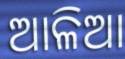
ଆଳିଆ